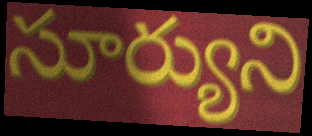
సూర్యుని